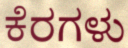
ಕೆರಗಳು